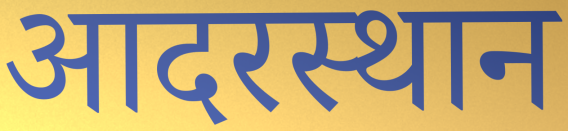
आदरस्थान